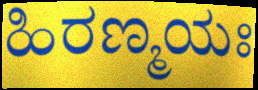
ಹಿರಣ್ಮಯಃ